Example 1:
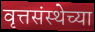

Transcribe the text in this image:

वृत्तसंस्थेच्या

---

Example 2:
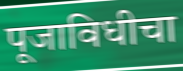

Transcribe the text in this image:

पूजाविधीचा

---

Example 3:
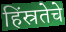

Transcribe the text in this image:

हिंस्रतेचे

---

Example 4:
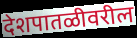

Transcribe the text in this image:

देशपातळीवरील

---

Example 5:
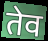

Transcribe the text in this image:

तेव